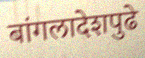
बांगलादेशपुढे